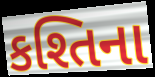
કશ્તિના